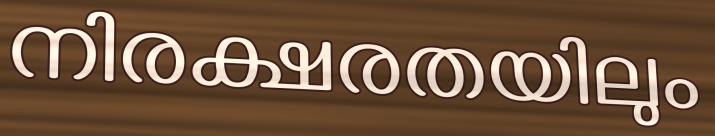
നിരക്ഷരതയിലും